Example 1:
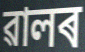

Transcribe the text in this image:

ৱালৰ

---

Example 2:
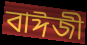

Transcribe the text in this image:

বাঈজী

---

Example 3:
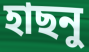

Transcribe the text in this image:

হাছনু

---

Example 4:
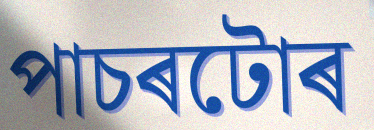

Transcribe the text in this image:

পাচৰটোৰ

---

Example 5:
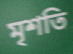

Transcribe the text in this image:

মৃশতি